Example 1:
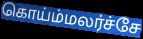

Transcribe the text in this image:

கொய்ம்மலர்ச்சே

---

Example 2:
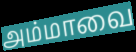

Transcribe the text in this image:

அம்மாவை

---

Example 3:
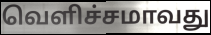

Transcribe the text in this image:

வெளிச்சமாவது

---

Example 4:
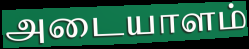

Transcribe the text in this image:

அடையாளம்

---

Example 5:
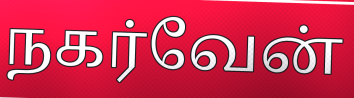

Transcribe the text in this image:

நகர்வேன்